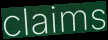
claims